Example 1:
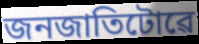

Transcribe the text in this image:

জনজাতিটোৱে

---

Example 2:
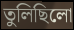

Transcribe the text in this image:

তুলিছিলো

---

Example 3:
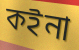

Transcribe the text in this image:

কইনা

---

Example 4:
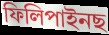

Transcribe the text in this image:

ফিলিপাইনছ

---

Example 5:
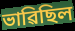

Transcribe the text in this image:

ভাৱিছিল